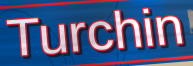
Turchin